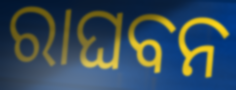
ରାଘବନ